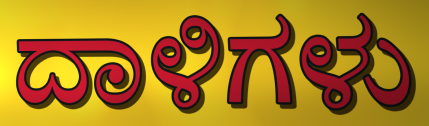
ದಾಳಿಗಳು